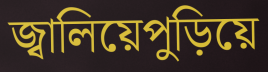
জ্বালিয়েপুড়িয়ে